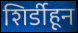
शिर्डीहून